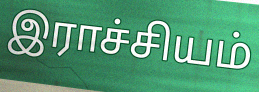
இராச்சியம்